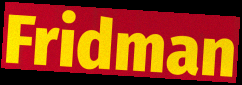
Fridman